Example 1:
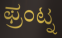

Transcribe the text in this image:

ಫ್ರಂಟ್ನ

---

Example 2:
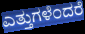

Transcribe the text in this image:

ಎತ್ತುಗಳೆಂದರೆ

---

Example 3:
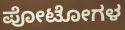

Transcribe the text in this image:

ಪೋಟೋಗಳ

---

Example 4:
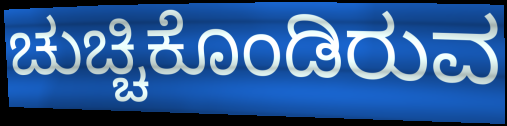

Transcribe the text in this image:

ಚುಚ್ಚಿಕೊಂಡಿರುವ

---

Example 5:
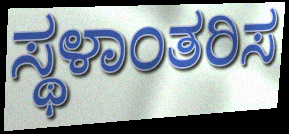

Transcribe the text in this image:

ಸ್ಥಳಾಂತರಿಸ